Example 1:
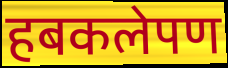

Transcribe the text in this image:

हबकलेपण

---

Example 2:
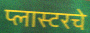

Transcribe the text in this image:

प्लास्टरचे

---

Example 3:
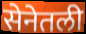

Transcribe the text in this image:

सेनेतली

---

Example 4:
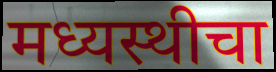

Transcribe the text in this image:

मध्यस्थीचा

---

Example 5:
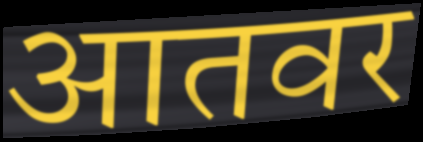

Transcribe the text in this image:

आतवर